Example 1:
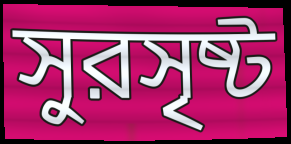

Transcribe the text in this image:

সুরসৃষ্ট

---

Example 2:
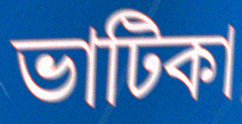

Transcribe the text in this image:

ভাটিকা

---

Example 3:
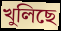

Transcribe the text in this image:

খুলিছে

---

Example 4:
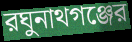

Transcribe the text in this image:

রঘুনাথগঞ্জের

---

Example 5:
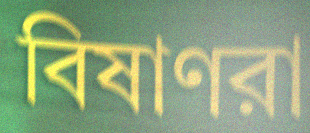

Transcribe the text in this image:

বিষাণরা